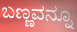
ಬಣ್ಣವನ್ನೂ